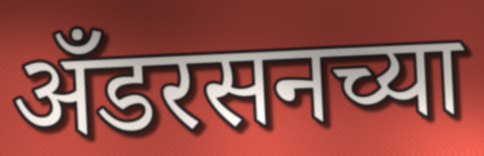
अँडरसनच्या